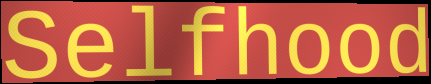
Selfhood